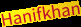
Hanifkhan